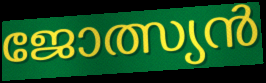
ജോത്സ്യൻ